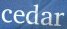
cedar